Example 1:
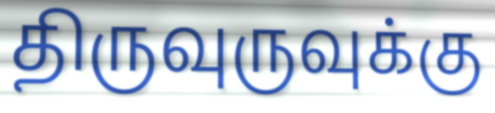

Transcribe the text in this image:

திருவுருவுக்கு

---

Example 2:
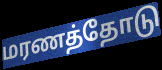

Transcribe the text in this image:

மரணத்தோடு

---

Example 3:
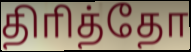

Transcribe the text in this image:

திரித்தோ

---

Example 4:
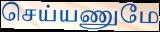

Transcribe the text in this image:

செய்யணுமே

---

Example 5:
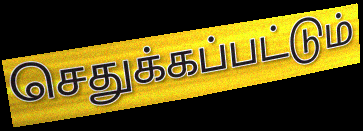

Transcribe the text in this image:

செதுக்கப்பட்டும்